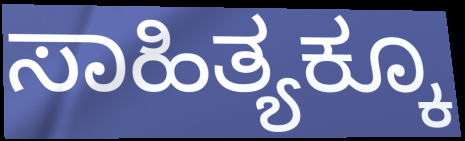
ಸಾಹಿತ್ಯಕ್ಕೂ